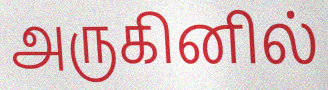
அருகினில்